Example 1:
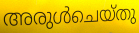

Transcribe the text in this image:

അരുൾചെയ്തു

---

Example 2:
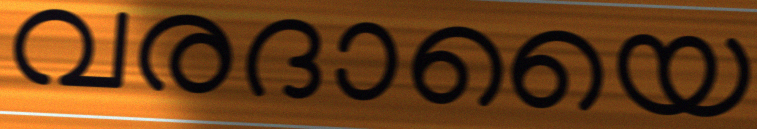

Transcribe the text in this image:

വരദായൈ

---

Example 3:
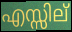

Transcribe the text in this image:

എസ്സില്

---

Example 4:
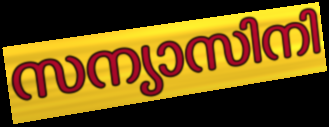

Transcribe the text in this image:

സന്യാസിനി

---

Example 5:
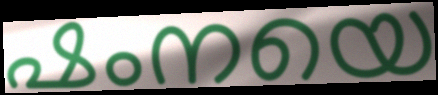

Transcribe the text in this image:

ഷംനയെ